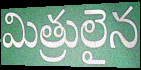
మిత్రులైన